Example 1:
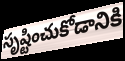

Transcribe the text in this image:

సృష్టించుకోడానికి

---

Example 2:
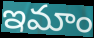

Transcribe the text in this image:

ఇమాం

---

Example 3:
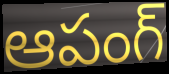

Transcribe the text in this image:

ఆపంగ్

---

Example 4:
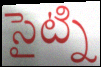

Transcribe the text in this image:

సైట్ని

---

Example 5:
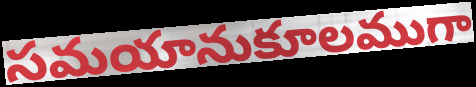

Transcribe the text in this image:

సమయానుకూలముగా